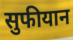
सुफीयान